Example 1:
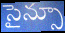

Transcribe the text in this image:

సైన్సూ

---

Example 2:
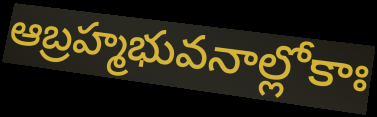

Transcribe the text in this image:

ఆబ్రహ్మభువనాల్లోకాః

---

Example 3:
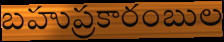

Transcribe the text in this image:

బహుప్రకారంబుల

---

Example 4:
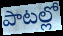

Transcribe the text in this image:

పాటల్లో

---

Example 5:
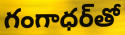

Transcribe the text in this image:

గంగాధర్‌తో